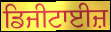
ਡਿਜੀਟਾਈਜ਼